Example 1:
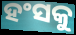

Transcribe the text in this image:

ହଂସକୁ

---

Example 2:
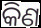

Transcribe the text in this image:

କିଣ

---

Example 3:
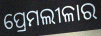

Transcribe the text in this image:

ପ୍ରେମଲୀଳାର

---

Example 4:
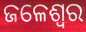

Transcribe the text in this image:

ଜଳେଶ୍ବର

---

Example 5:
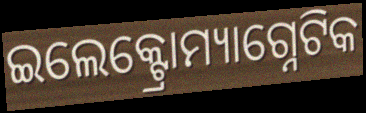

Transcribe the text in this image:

ଇଲେକ୍ଟ୍ରୋମ୍ୟାଗ୍ନେଟିକ